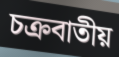
চক্রবাতীয়